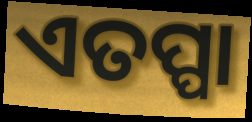
ଏତପ୍ପା